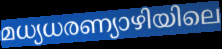
മധ്യധരണ്യാഴിയിലെ